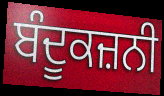
ਬੰਦੂਕਜ਼ਨੀ